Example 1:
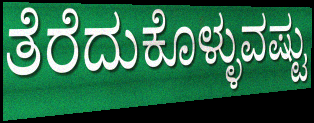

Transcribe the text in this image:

ತೆರೆದುಕೊಳ್ಳುವಷ್ಟು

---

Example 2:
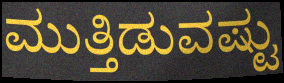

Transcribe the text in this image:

ಮುತ್ತಿಡುವಷ್ಟು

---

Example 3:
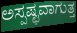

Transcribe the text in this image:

ಅಸ್ಪಷ್ಟವಾಗುತ್ತ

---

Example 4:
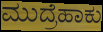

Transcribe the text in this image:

ಮುದ್ರೆಹಾಕು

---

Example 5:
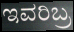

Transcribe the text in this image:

ಇವರಿಬ್ರ